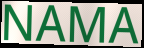
NAMA